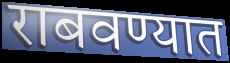
राबवण्यात